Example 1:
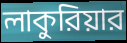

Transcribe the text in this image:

লাকুরিয়ার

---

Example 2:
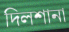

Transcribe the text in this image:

দিলশানা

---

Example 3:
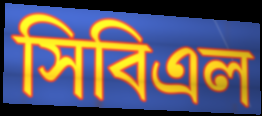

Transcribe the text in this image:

সিবিএল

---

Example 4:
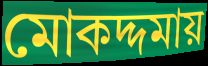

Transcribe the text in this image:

মোকদ্দমায়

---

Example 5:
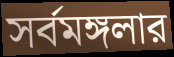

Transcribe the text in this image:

সর্বমঙ্গলার